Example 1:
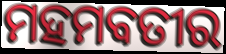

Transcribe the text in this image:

ମହମବତୀର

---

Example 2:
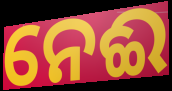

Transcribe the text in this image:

ନେଈ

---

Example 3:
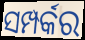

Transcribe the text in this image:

ସମ୍ପର୍କର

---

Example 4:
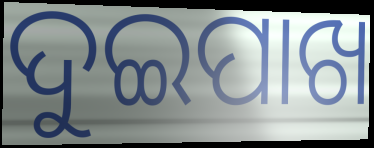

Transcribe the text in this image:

ଦୁଇପାଖ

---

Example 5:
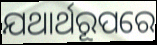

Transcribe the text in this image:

ଯଥାର୍ଥରୂପରେ